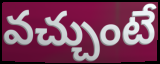
వచ్చుంటే